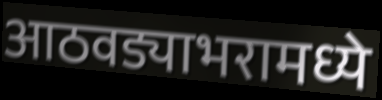
आठवड्याभरामध्ये